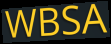
WBSA